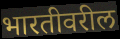
भारतीवरील